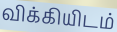
விக்கியிடம்